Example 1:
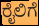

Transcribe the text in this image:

ರೈಲಿಗೆ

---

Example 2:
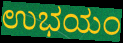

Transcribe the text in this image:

ಉಭಯಂ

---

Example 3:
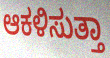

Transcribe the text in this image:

ಆಕಳಿಸುತ್ತಾ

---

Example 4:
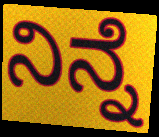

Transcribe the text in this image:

ನಿನ್ನೆ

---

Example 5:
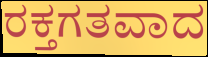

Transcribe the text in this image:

ರಕ್ತಗತವಾದ